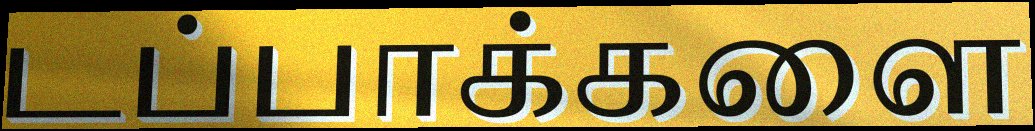
டப்பாக்களை